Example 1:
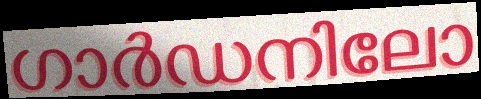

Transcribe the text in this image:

ഗാർഡനിലോ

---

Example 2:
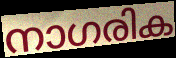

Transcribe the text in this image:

നാഗരിക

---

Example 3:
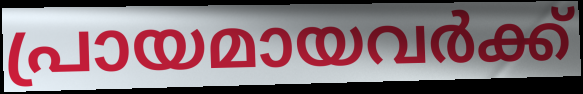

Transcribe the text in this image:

പ്രായമായവർക്ക്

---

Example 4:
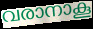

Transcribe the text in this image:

വരാനാകൂ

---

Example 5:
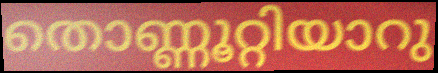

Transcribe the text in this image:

തൊണ്ണൂറ്റിയാറു